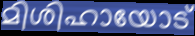
മിശിഹായോട്